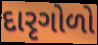
દારૃગોળો